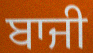
ਬਾਜੀ